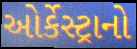
ઓર્કેસ્ટ્રાનો